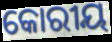
କୋରୀୟ